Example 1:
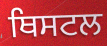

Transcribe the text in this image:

ਥਿਸਟਲ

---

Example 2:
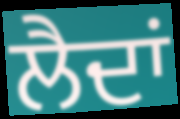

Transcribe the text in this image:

ਲੈਦਾਂ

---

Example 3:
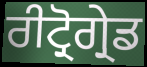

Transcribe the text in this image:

ਰੀਟ੍ਰੋਗ੍ਰੇਡ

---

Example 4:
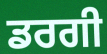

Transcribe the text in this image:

ਡਰਗੀ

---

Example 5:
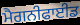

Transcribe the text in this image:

ਮੈਗਨੀਫਾਈਡ